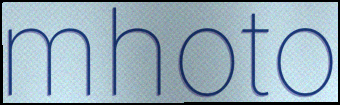
mhoto